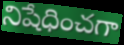
నిషేధించగా